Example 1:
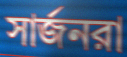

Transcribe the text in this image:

সার্জনরা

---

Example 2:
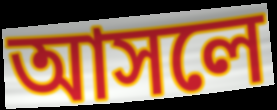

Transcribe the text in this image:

আসলে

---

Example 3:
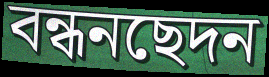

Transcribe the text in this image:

বন্ধনছেদন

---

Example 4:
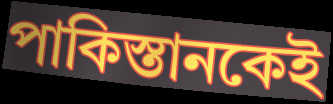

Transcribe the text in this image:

পাকিস্তানকেই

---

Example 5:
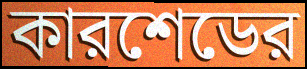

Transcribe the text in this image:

কারশেডের